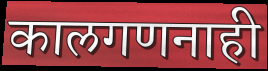
कालगणनाही